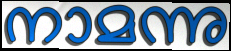
നാമന്നു